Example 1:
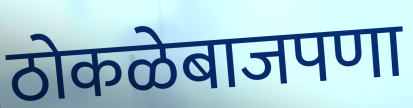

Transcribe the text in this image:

ठोकळेबाजपणा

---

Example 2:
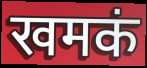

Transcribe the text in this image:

खमकं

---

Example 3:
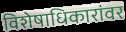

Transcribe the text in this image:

विशेषाधिकारांवर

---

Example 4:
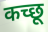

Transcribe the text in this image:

कच्छू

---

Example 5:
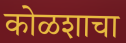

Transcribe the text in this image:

कोळशाचा